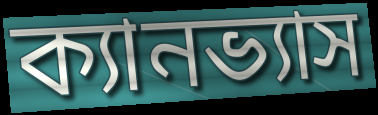
ক্যানভ্যাস